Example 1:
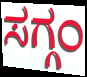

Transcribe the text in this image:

ಸಗ್ಗಂ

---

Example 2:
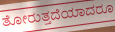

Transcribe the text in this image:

ತೋರುತ್ತದೆಯಾದರೂ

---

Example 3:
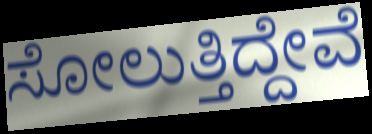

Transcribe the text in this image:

ಸೋಲುತ್ತಿದ್ದೇವೆ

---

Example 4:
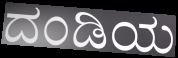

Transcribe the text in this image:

ದಂಡಿಯ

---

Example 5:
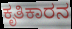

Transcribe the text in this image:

ಕೃತಿಕಾರನ